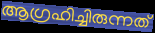
ആഗ്രഹിച്ചിരുന്നത്